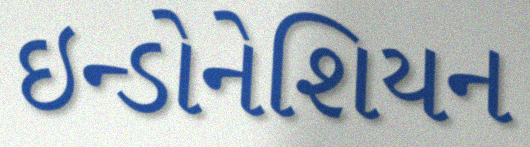
ઇન્ડોનેશિયન